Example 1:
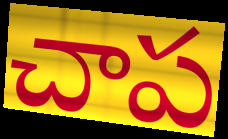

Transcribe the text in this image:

చాప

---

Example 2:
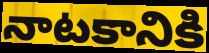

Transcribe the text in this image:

నాటకానికి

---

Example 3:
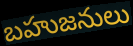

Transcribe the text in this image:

బహుజనులు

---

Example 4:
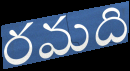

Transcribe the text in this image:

రమది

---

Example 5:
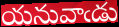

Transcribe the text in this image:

యనువాఁడు